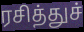
ரசித்துச்